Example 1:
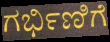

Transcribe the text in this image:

ಗರ್ಭಿಣಿಗೆ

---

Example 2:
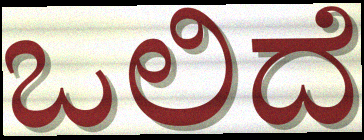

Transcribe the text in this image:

ಒಲಿದೆ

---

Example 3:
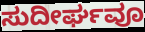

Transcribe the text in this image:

ಸುದೀರ್ಘವೂ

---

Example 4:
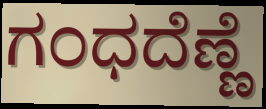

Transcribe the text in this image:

ಗಂಧದೆಣ್ಣೆ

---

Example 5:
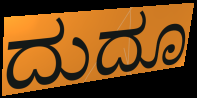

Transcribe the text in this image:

ದುದೂ